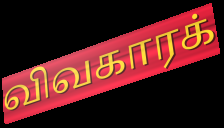
விவகாரக்